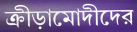
ক্রীড়ামোদীদের